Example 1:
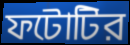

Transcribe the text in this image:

ফটোটির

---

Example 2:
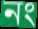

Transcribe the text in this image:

নং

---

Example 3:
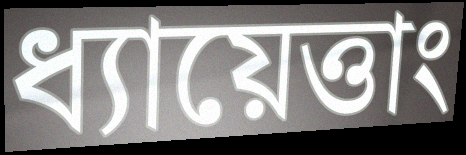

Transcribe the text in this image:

ধ্যায়েত্তাং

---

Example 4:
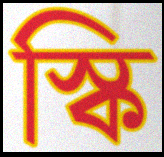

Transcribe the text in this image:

স্কি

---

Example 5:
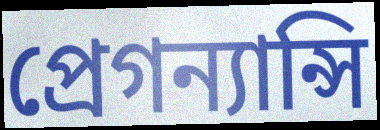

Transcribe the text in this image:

প্রেগন্যান্সি